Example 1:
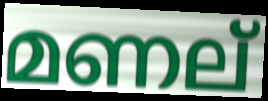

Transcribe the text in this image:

മണല്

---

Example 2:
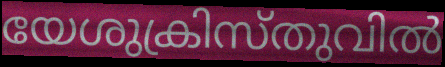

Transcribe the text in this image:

യേശുക്രിസ്തുവിൽ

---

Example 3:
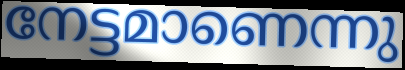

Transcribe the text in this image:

നേട്ടമാണെന്നു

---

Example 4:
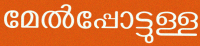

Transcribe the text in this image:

മേൽപ്പോട്ടുള്ള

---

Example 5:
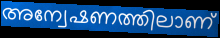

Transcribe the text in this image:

അന്വേഷണത്തിലാണ്